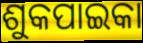
ଶୁକପାଇକା